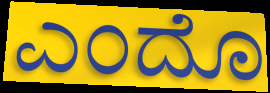
ಎಂದೊ